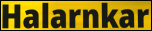
Halarnkar